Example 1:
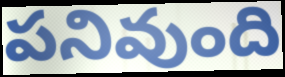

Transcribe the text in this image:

పనివుంది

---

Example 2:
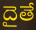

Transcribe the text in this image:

దైతే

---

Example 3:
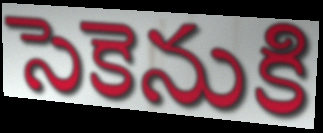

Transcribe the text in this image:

సెకెనుకి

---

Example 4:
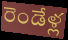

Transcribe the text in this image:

రెండేళ్ల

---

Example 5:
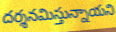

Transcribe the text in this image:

దర్శనమిస్తున్నాయని